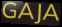
GAJA